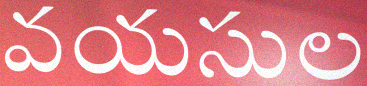
వయసుల